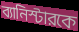
ব্যানিস্টারকে